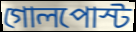
গোলপোস্ট